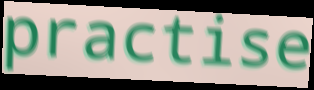
practise